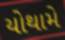
યોથામે